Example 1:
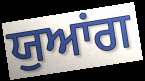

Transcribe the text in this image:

ਯੁਆਂਗ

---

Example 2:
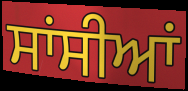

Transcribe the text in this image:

ਸਾਂਸੀਆਂ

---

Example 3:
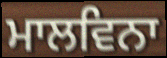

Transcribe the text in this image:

ਮਾਲਵਿਨਾ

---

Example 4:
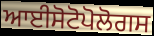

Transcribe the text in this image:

ਆਈਸੋਟੋਪੋਲੋਗਸ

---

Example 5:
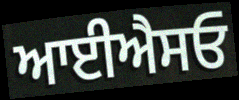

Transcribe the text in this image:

ਆਈਐਸਓ